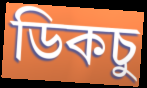
ডিকচু